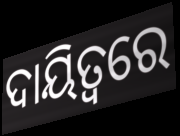
ଦାୟିତ୍ୱରେ